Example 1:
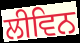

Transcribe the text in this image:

ਲੀਵਿਨ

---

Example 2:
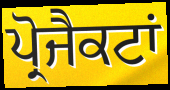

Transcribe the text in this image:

ਪ੍ਰੋਜੈਕਟਾਂ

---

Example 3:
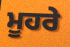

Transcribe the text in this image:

ਮੂਹਰੇ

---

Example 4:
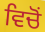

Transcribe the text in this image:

ਵਿਚੋਂ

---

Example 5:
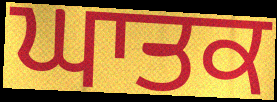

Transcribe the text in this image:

ਘਾਤਕ